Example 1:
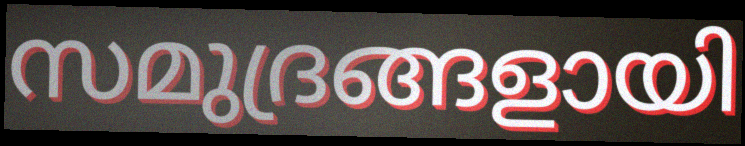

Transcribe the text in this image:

സമുദ്രങ്ങളായി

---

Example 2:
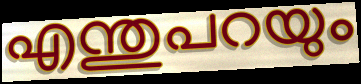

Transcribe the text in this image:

എന്തുപറയും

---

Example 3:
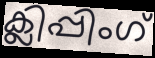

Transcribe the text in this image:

ക്ലിപ്പിംഗ്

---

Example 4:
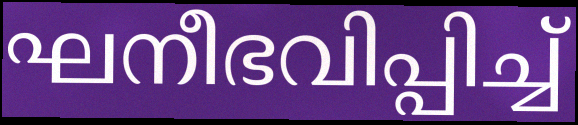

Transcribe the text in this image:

ഘനീഭവിപ്പിച്ച്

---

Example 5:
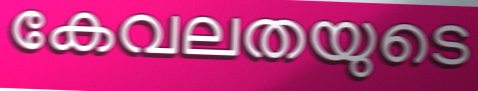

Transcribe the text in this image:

കേവലതയുടെ